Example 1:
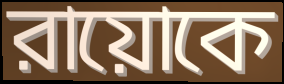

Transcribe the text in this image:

রায়োকে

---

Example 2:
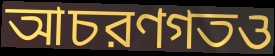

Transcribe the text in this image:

আচরণগতও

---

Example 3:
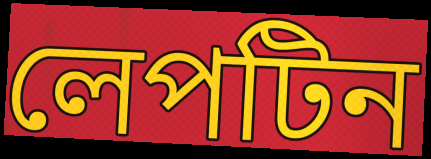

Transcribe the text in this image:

লেপটিন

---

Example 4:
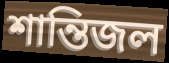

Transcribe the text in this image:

শান্তিজল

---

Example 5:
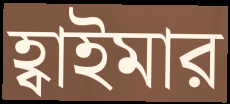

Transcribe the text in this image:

হ্বাইমার